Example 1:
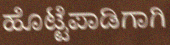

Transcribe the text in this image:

ಹೊಟ್ಟೆಪಾಡಿಗಾಗಿ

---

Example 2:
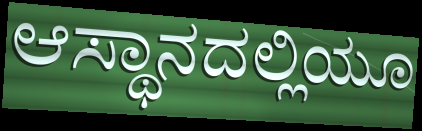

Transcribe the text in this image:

ಆಸ್ಥಾನದಲ್ಲಿಯೂ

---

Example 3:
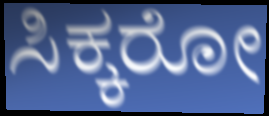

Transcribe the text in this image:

ಸಿಕ್ಕರೋ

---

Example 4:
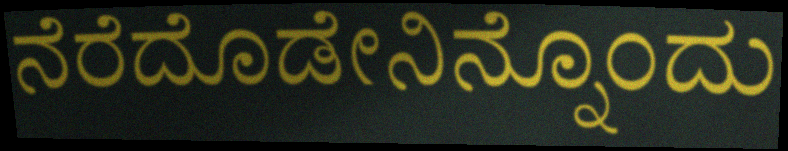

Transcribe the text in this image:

ನೆರೆದೊಡೇನಿನ್ನೊಂದು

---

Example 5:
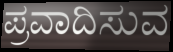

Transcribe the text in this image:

ಪ್ರವಾದಿಸುವ